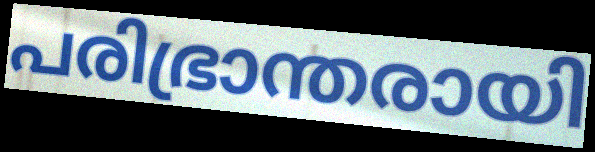
പരിഭ്രാന്തരായി